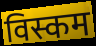
विस्कम